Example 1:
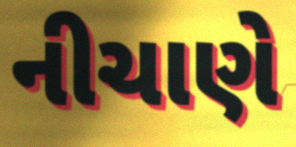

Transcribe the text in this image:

નીચાણે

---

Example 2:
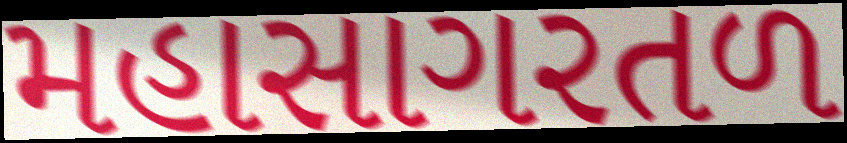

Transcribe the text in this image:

મહાસાગરતળ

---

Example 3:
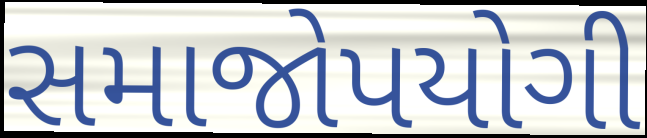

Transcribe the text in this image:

સમાજોપયોગી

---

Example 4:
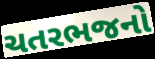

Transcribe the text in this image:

ચતરભજનો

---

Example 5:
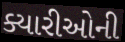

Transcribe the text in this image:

ક્યારીઓની